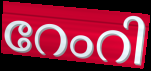
റേംറി